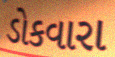
ડોકવારા